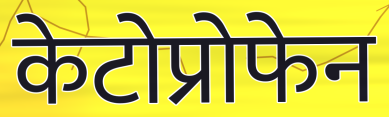
केटोप्रोफेन